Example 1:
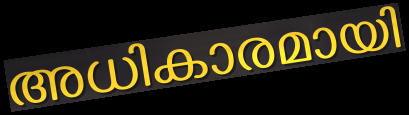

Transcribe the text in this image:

അധികാരമായി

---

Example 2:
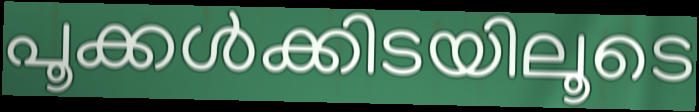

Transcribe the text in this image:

പൂക്കൾക്കിടയിലൂടെ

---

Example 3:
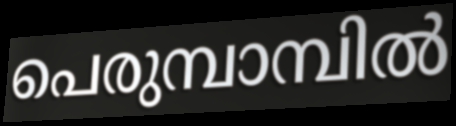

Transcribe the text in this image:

പെരുമ്പാമ്പിൽ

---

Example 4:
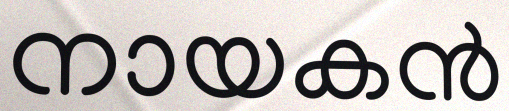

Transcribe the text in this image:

നായകൻ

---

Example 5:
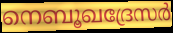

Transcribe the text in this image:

നെബൂഖദ്രേസർ